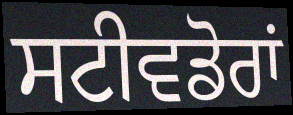
ਸਟੀਵਡੋਰਾਂ